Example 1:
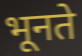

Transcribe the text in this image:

भूनते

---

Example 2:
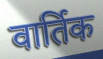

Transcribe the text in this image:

वार्तिक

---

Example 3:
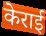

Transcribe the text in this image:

केराई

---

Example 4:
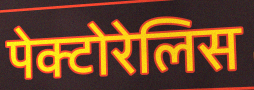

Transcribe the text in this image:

पेक्टोरेलिस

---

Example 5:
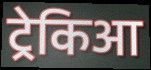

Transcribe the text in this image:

ट्रेकिआ